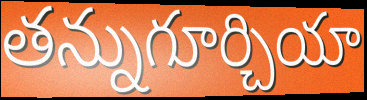
తన్నుగూర్చియా